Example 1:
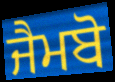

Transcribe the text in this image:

ਜੈਮਬੋ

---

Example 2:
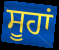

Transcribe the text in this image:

ਸੂਹਾਂ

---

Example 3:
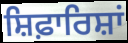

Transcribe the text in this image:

ਸ਼ਿਫ਼ਾਰਿਸ਼ਾਂ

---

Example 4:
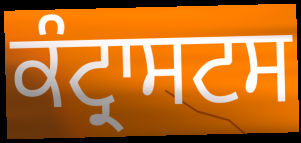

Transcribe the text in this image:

ਕੰਟ੍ਰਾਸਟਸ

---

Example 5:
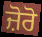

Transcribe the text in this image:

ਜ਼ੋਰੋ